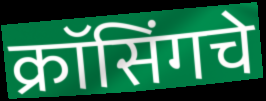
क्रॉसिंगचे